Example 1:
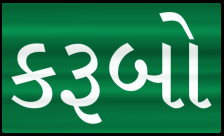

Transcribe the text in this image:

કરૂબો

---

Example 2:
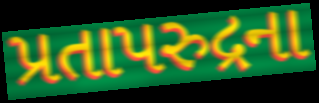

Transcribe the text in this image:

પ્રતાપરુદ્રના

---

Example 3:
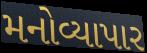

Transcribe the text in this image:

મનોવ્યાપાર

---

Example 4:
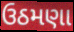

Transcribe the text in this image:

ઉઠમણા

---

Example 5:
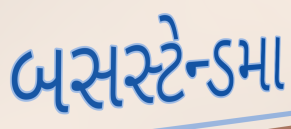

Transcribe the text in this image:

બસસ્ટેન્ડમા